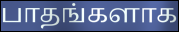
பாதங்களாக